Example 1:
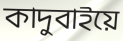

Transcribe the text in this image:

কাদুবাইয়ে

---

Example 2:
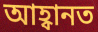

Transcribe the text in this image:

আহ্বানত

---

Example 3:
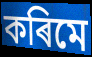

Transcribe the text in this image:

কৰিমে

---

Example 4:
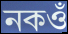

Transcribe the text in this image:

নকওঁ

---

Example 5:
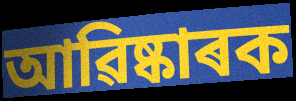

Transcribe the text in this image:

আৱিষ্কাৰক